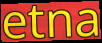
etna